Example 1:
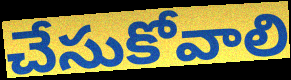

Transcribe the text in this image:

చేసుకోవాలి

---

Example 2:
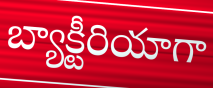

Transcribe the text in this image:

బ్యాక్టీరియాగా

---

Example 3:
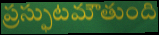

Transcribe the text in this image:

ప్రస్ఫుటమౌతుంది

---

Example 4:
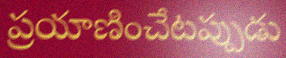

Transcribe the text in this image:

ప్రయాణించేటప్పుడు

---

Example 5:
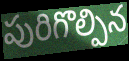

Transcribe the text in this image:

పురిగొల్పిన